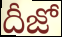
దీజో